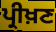
ਪ੍ਰੀਖ਼ਣ